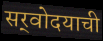
सर्वोदयाची